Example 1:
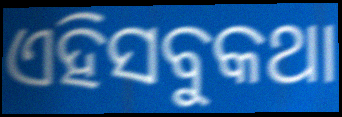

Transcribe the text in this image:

ଏହିସବୁକଥା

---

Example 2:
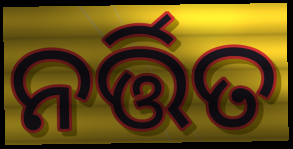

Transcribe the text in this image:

ନର୍ତ୍ତିତ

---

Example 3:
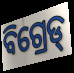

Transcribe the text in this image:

ବିଗ୍ରେଡ୍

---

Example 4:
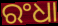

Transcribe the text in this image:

ରଂଧା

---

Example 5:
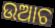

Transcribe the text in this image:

ଉଆଚ